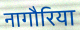
नागौरिया